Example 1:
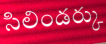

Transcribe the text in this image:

సిలిండర్కు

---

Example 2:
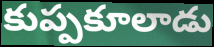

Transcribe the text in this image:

కుప్పకూలాడు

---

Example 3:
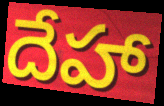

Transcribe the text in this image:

దేహా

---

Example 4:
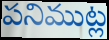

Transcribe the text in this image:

పనిముట్ల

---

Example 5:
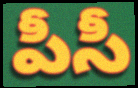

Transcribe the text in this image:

పీసీ